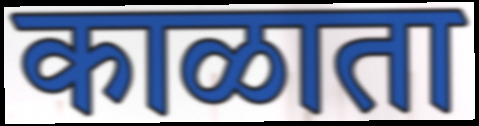
काळाता